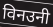
विनउनी